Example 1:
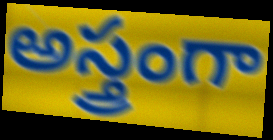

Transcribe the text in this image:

అస్త్రంగా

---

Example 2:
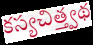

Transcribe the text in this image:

కస్యచిత్త్వథ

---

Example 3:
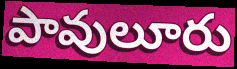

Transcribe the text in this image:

పావులూరు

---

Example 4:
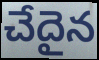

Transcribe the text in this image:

చేదైన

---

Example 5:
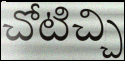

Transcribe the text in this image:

చోటిచ్చి